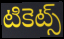
టికెట్స్